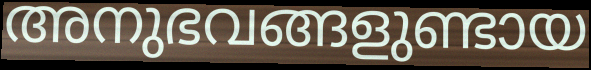
അനുഭവങ്ങളുണ്ടായ